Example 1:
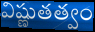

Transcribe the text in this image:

విష్ణుతత్వం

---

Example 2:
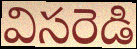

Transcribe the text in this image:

విసరెడి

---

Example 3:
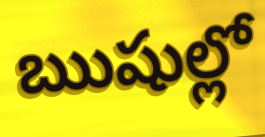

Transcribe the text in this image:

ఋషుల్లో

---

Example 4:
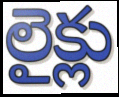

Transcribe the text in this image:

లైక్లు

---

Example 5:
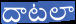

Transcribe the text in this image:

దాటలా